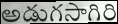
అడుగసాగిరి